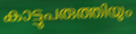
കാട്ടുപരുത്തിയും